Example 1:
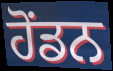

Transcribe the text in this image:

ਹੋਂਡਨ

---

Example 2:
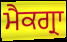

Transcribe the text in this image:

ਮੈਕਗ੍ਰਾ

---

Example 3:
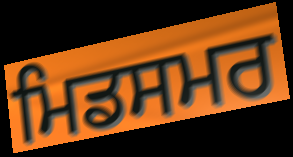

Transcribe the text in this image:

ਮਿਡਸਮਰ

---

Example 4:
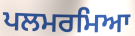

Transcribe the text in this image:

ਪਲਮਰਮਿਆ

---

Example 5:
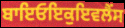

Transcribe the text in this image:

ਬਾਇਓਇਕੁਇਵਲੈਂਸ